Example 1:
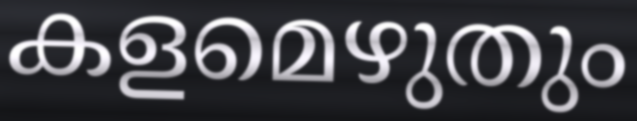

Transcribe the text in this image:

കളമെഴുതും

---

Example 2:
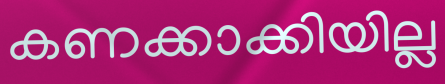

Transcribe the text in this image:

കണക്കാക്കിയില്ല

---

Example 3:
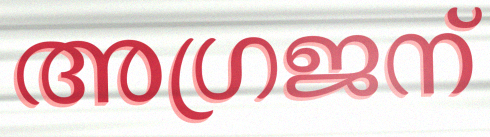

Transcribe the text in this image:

അഗ്രജന്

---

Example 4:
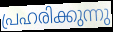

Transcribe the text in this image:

പ്രഹരിക്കുന്നു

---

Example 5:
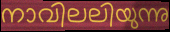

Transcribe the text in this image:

നാവിലലിയുന്നു